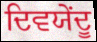
ਦਿਵਯੇਂਦੂ